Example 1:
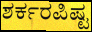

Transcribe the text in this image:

ಶರ್ಕರಪಿಷ್ಟ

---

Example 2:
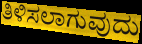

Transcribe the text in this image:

ತಿಳಿಸಲಾಗುವುದು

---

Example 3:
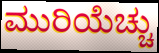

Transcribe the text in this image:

ಮುರಿಯೆಚ್ಚು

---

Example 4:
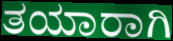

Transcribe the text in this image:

ತಯಾರಾಗಿ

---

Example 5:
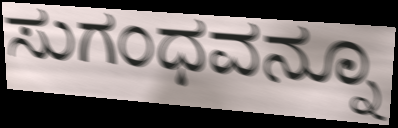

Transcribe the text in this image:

ಸುಗಂಧವನ್ನೂ